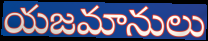
యజమానులు